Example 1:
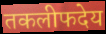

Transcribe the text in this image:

तकलीफदेय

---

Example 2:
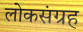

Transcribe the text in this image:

लोकसंग्रह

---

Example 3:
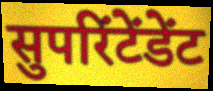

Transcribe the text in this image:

सुपरिंटेंडेंट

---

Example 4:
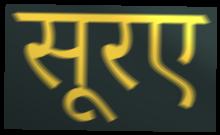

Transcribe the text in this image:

सूरए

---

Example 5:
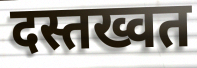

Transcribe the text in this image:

दस्तख्वत